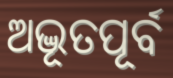
ଅଦ୍ଭୂତପୂର୍ବ